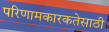
परिणामकारकतेसाठी